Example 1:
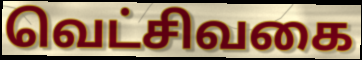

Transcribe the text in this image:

வெட்சிவகை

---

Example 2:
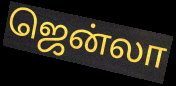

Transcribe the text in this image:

ஜென்லா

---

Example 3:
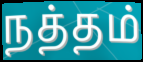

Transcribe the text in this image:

நத்தம்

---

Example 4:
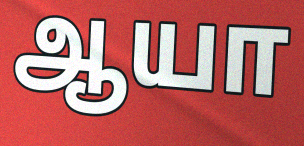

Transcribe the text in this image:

ஆயா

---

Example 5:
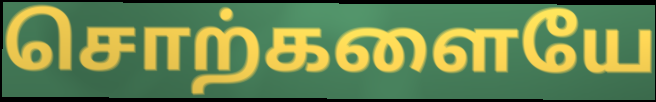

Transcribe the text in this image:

சொற்களையே